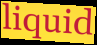
liquid